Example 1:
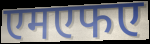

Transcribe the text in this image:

एमएफए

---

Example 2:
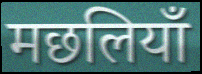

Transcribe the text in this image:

मछलियाँ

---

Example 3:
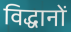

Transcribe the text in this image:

विद्धानों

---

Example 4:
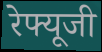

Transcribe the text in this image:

रेफ्यूजी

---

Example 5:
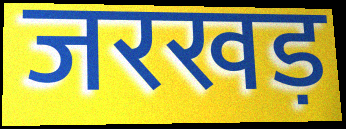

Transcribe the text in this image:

जरखड़